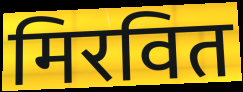
मिरवित